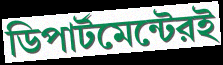
ডিপার্টমেন্টেরই